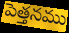
పెత్తనము